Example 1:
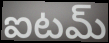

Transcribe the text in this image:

ఐటమ్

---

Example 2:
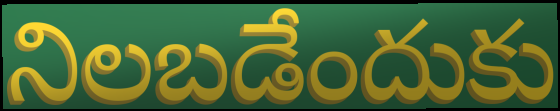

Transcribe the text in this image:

నిలబడేందుకు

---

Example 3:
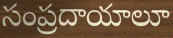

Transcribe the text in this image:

సంప్రదాయాలూ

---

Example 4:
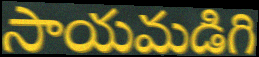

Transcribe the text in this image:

సాయమడిగి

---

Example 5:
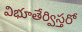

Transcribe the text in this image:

విభూతేర్విస్తరో